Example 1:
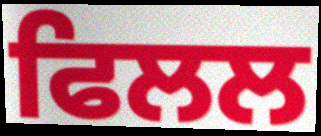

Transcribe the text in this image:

ਫਿਲਲ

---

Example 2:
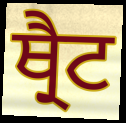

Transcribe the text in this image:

ਥ੍ਰੈਟ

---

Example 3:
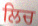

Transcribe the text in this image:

ਲਿਚ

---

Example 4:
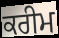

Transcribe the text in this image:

ਕਰੀਮ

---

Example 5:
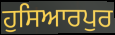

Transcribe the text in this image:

ਹੁਸਿਆਰਪੁਰ